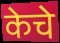
केचे